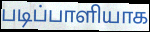
படிப்பாளியாக